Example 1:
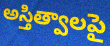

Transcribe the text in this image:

అస్తిత్వాలపై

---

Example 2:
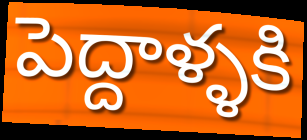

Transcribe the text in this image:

పెద్దాళ్ళకి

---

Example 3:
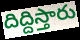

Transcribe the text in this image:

దిద్దిస్తారు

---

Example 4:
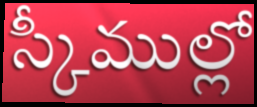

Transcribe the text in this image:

స్కీముల్లో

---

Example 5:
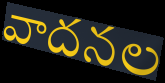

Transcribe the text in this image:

వాదనల